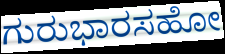
ಗುರುಭಾರಸಹೋ